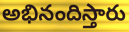
అభినందిస్తారు